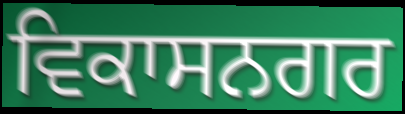
ਵਿਕਾਸਨਗਰ